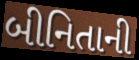
બીનિતાની